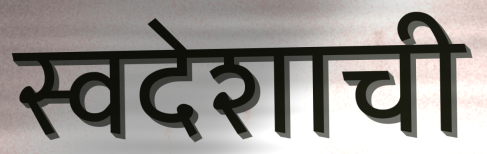
स्वदेशाची